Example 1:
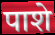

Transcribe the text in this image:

पाशे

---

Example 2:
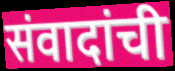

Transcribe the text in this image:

संवादांची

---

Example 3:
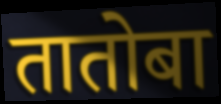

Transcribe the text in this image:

तातोबा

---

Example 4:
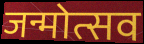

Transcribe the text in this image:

जन्मोत्सव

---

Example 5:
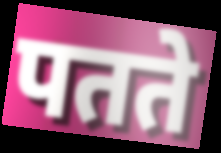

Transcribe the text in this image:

पतते